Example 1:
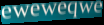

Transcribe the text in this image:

eweweqwe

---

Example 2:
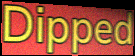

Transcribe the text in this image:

Dipped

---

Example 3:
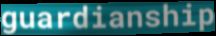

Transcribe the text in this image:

guardianship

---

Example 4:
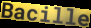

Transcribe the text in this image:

Bacille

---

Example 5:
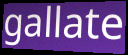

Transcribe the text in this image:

gallate